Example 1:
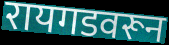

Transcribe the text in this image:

रायगडवरून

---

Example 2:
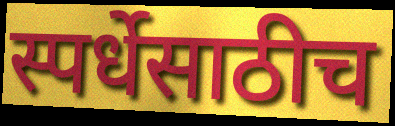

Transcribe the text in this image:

स्पर्धेसाठीच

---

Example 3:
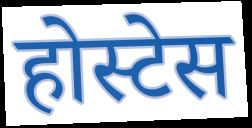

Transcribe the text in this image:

होस्टेस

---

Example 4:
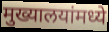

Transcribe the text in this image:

मुख्यालयांमध्ये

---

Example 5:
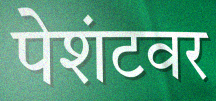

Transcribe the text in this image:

पेशंटवर